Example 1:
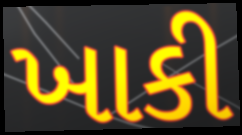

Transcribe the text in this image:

ખાકી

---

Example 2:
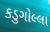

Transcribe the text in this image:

કડુગોલ્લા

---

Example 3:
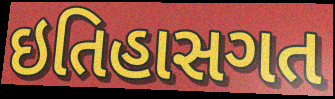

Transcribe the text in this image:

ઇતિહાસગત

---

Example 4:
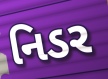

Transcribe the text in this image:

નિડર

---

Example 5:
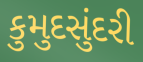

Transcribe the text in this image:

કુમુદસુંદરી